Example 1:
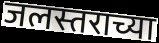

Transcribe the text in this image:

जलस्तराच्या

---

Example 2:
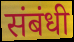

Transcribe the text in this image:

संबंधी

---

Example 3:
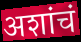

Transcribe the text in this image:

अशांचं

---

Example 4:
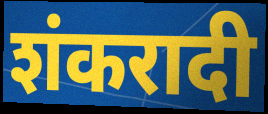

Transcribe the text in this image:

शंकरादी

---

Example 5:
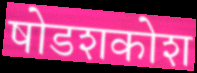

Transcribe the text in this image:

षोडशकोश